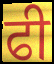
ਫੀ